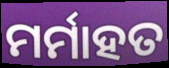
ମର୍ମାହତ